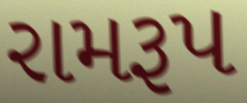
રામરૂપ